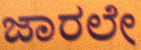
ಜಾರಲೇ